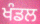
ਖੰਡਲ